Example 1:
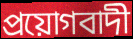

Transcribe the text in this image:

প্রয়োগবাদী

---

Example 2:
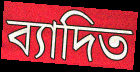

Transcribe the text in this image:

ব্যাদিত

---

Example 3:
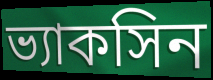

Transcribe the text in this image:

ভ্যাকসিন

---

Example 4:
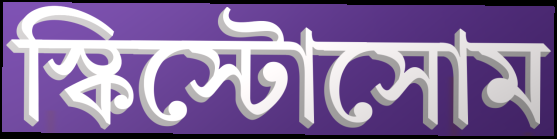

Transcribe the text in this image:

স্কিস্টোসোম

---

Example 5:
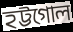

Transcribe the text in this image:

হট্টগোল